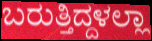
ಬರುತ್ತಿದ್ದಳಲ್ಲಾ